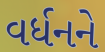
વર્ધનને